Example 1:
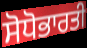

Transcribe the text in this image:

ਸੋਧੋਭਾਰਤੀ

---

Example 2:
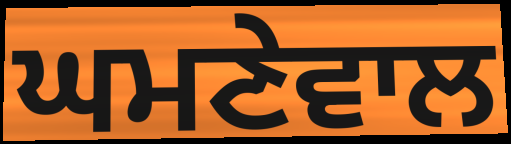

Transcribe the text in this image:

ਘਮਣੇਵਾਲ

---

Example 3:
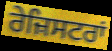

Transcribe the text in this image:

ਰੇਜ਼ਿਸਟਰਾਂ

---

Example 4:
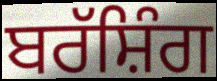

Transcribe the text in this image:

ਬਰੱਸ਼ਿੰਗ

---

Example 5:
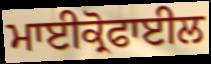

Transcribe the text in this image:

ਮਾਈਕ੍ਰੋਫਾਈਲ